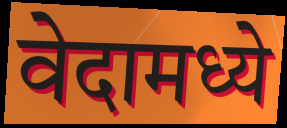
वेदामध्ये